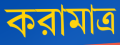
করামাত্র